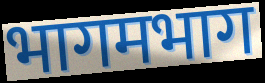
भागमभाग